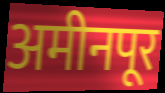
अमीनपूर